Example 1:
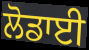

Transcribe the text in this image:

ਲੋਡਾਈ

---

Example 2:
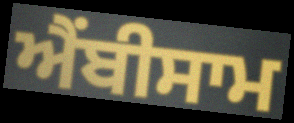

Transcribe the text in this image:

ਐਂਬੀਸਾਮ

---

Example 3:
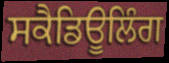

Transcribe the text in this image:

ਸਕੈਡਿਊਲਿੰਗ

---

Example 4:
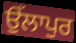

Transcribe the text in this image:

ਉੱਲਾਪੁਰ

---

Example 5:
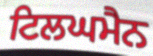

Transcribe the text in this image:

ਟਿਲਘਮੈਨ